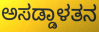
ಅಸಡ್ಡಾಳತನ